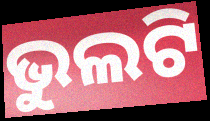
ଭୁଲଟି